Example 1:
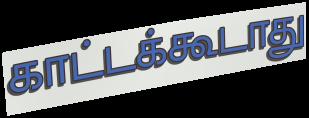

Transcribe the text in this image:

காட்டக்கூடாது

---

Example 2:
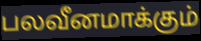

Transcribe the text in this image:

பலவீனமாக்கும்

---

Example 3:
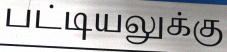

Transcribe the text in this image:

பட்டியலுக்கு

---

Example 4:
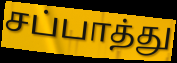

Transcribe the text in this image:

சப்பாத்து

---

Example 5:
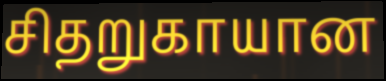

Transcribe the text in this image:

சிதறுகாயான